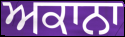
ਅਕਾਨਾ